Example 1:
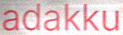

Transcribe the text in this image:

adakku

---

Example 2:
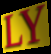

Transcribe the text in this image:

LY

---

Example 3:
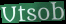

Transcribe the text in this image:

Utsob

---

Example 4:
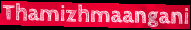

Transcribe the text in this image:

Thamizhmaangani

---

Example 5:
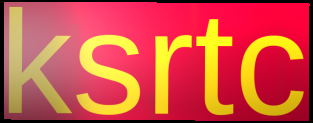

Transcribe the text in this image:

ksrtc